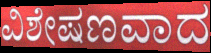
ವಿಶೇಷಣವಾದ